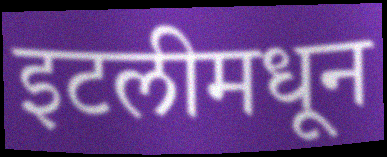
इटलीमधून